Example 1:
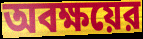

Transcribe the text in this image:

অবক্ষয়ের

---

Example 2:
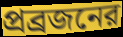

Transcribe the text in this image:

প্রব্রজনের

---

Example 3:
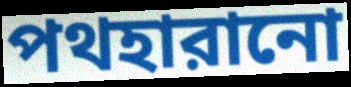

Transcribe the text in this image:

পথহারানো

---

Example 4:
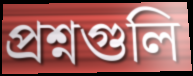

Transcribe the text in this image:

প্রশ্নগুলি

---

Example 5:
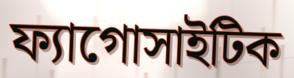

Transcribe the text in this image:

ফ্যাগোসাইটিক